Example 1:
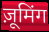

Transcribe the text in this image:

ज़ूमिंग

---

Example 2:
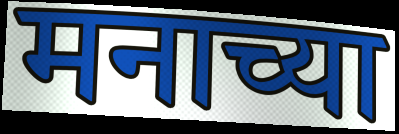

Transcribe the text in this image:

मनाच्या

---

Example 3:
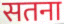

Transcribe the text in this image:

सतना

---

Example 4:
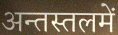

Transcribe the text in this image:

अन्तस्तलमें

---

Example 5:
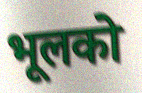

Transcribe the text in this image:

भूलको